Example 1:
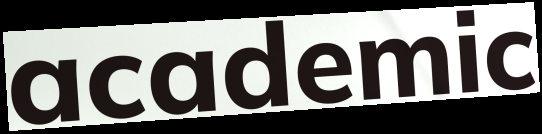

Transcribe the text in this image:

academic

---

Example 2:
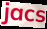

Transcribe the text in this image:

jacs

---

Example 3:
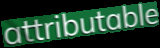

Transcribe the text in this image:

attributable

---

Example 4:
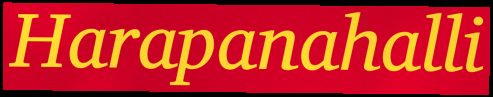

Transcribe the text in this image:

Harapanahalli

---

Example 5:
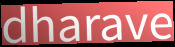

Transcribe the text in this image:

dharave